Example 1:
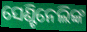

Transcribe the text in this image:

ସେଣ୍ଟିନେଲିଙ୍କ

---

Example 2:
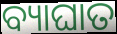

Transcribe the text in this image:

ବ୍ୟାଘାତ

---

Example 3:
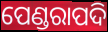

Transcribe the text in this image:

ପେଣ୍ଡରାପଦି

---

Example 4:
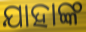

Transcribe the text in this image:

ଯାହାଙ୍କ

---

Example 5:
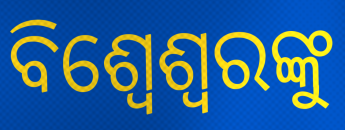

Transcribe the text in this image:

ବିଶ୍ୱେଶ୍ୱରଙ୍କୁ